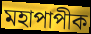
মহাপাপীক